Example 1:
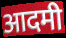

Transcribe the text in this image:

आदमी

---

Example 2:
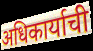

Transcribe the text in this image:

अधिकार्याची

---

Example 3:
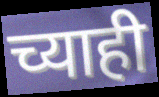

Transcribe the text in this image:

च्याही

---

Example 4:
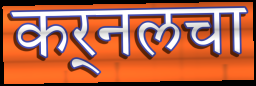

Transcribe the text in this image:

कर्नलचा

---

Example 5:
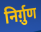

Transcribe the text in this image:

निर्ग़ुण